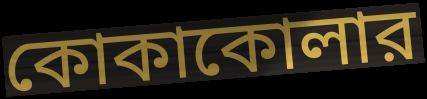
কোকাকোলার